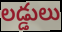
లడ్డులు